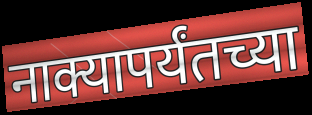
नाक्यापर्यंतच्या